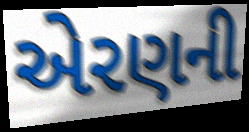
એરણની